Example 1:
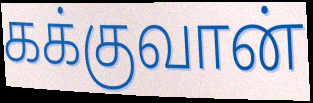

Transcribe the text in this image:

கக்குவான்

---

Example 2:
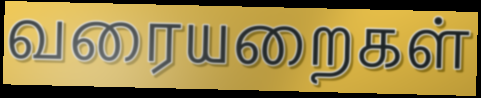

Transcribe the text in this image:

வரையறைகள்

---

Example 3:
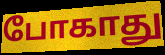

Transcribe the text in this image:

போகாது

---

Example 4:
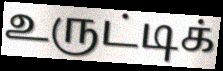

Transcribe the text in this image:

உருட்டிக்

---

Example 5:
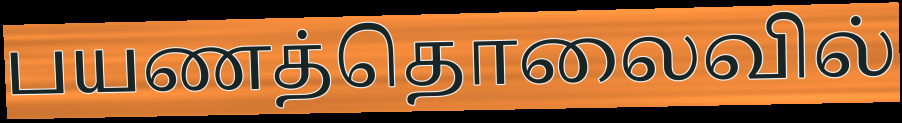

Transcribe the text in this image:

பயணத்தொலைவில்